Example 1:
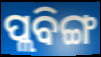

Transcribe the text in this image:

ପ୍ଲବିଙ୍ଗ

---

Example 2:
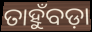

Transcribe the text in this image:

ତାହୁଁବଡ଼ା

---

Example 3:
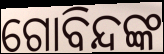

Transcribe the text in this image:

ଗୋବିନ୍ଦଙ୍କ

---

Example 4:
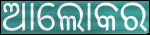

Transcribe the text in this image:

ଆଲୋକର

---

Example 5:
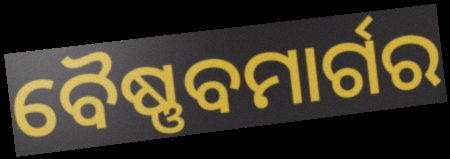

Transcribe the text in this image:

ବୈଷ୍ଣବମାର୍ଗର